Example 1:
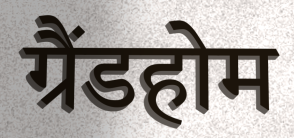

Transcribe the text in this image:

ग्रैंडहोम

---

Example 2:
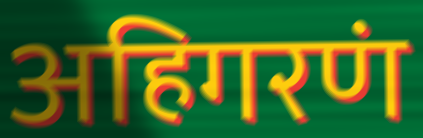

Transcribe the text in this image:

अहिगरणं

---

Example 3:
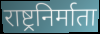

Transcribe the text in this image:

राष्ट्रनिर्माता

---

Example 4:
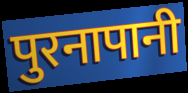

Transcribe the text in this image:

पुरनापानी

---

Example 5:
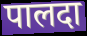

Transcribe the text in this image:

पालदा